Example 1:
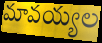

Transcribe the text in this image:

మావయ్యల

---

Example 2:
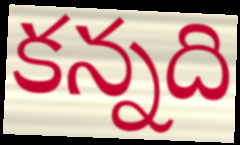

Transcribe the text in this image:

కన్నది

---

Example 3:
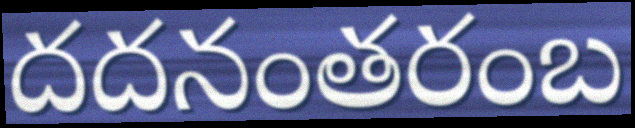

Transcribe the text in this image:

దదనంతరంబ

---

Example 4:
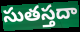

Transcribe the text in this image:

సుతస్తదా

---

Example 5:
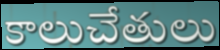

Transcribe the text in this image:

కాలుచేతులు